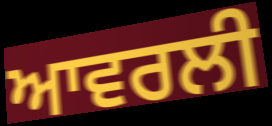
ਆਵਰਲੀ